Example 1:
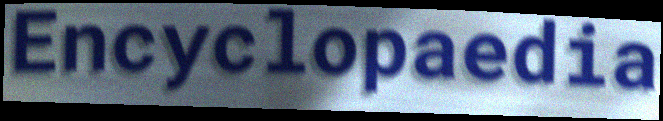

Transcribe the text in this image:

Encyclopaedia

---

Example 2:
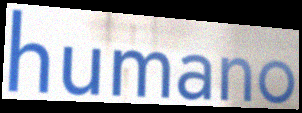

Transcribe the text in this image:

humano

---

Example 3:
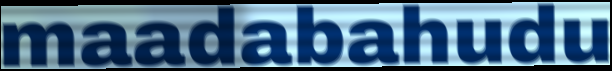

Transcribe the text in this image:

maadabahudu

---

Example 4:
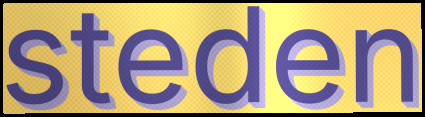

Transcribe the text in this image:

steden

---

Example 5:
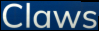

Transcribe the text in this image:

Claws